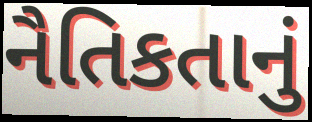
નૈતિકતાનું